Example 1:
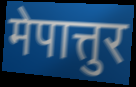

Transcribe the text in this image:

मेपात्तुर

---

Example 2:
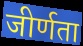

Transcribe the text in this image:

जीर्णता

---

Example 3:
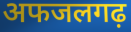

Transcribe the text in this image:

अफजलगढ़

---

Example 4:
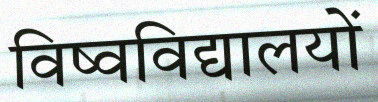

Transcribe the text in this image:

विष्वविद्यालयों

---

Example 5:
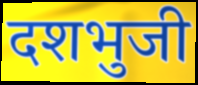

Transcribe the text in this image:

दशभुजी